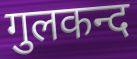
गुलकन्द